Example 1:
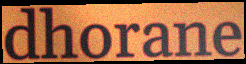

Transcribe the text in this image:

dhorane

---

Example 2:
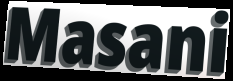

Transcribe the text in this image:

Masani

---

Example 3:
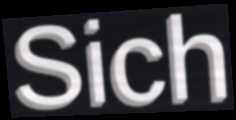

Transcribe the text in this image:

Sich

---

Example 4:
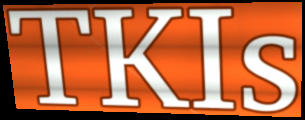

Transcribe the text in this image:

TKIs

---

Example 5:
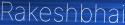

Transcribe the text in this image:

Rakeshbhai